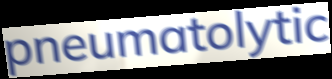
pneumatolytic